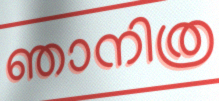
ഞാനിത്ര